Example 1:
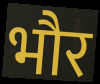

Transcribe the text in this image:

भौर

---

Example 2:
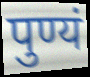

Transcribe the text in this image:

पुण्यं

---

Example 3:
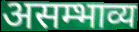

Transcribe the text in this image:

असम्भाव्य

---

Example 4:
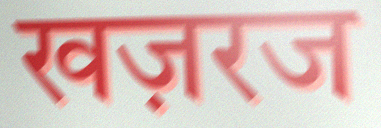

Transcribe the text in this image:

खज़रज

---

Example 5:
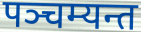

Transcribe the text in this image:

पञ्चम्यन्त